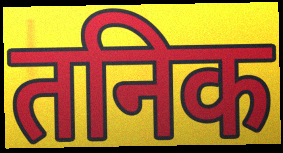
तनिक